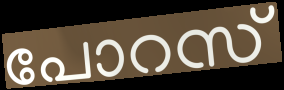
പോറസ്